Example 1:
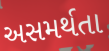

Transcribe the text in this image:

અસમર્થતા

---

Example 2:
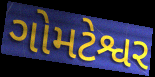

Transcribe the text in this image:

ગોમટેશ્વર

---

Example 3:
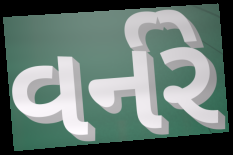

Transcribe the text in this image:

વર્નરે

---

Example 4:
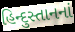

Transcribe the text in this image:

હિન્દુસ્તાનનાં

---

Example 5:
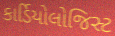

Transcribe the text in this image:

કાર્ડિયોલોજિસ્ટ